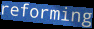
reforming